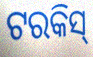
ଟରକିସ୍